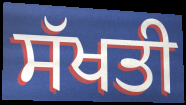
ਸੱਖਤੀ